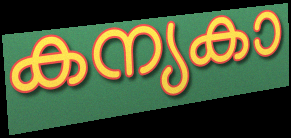
കന്യകാ